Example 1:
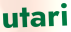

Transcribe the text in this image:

utari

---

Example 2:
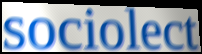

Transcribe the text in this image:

sociolect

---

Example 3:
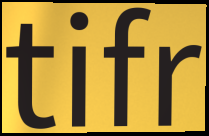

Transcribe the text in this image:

tifr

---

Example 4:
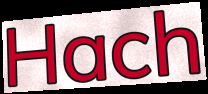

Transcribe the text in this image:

Hach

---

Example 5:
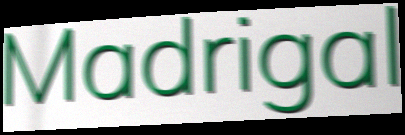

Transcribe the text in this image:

Madrigal